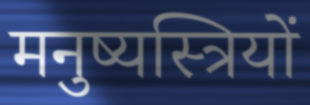
मनुष्यस्त्रियों